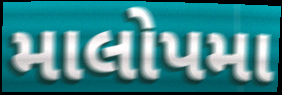
માલોપમા